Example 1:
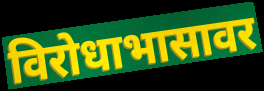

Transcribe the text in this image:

विरोधाभासावर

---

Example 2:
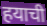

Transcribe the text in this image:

हयाची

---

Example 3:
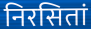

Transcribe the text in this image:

निरसितां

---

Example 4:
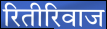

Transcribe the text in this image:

रितीरिवाज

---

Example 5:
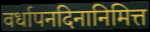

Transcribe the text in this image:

वर्धापनदिनानिमित्त